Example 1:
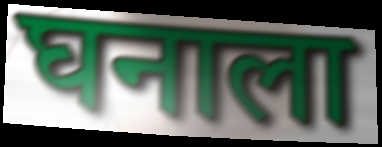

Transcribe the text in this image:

घनाला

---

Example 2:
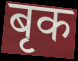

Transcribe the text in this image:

बृक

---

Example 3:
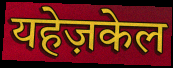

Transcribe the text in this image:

यहेज़केल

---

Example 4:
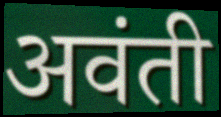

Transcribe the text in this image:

अवंती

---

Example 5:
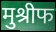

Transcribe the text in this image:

मुश्रीफ